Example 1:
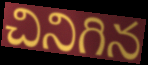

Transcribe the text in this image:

చినిగిన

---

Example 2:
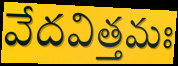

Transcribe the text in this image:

వేదవిత్తమః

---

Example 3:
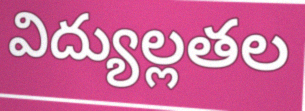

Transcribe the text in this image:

విద్యుల్లతల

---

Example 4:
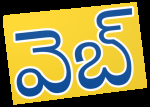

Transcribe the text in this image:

వెబ్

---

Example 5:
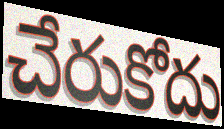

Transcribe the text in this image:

చేరుకోదు